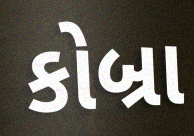
કોબ્રા